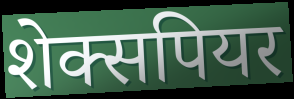
शेक्सपियर